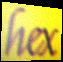
hex